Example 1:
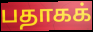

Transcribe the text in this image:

பதாகக்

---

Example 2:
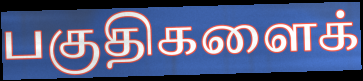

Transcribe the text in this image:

பகுதிகளைக்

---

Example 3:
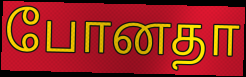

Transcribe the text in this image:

போனதா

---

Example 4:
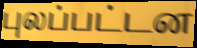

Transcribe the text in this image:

புலப்பட்டன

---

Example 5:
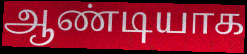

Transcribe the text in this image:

ஆண்டியாக